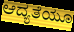
ಆದ್ಯತೆಯೂ